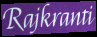
Rajkranti